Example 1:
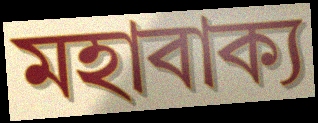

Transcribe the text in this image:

মহাবাক্য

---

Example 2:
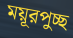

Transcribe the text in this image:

ময়ূরপুচ্ছ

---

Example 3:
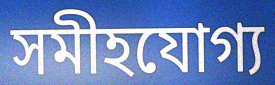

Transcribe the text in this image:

সমীহযোগ্য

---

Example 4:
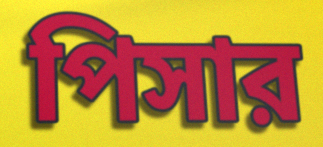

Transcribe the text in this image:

পিসার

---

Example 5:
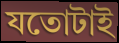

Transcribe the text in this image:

যতোটাই